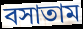
বসাতাম